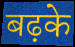
बढ़के